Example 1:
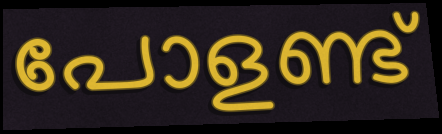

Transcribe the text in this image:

പോളണ്ട്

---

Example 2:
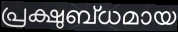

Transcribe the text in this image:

പ്രക്ഷുബ്ധമായ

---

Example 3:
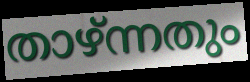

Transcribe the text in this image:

താഴ്ന്നതും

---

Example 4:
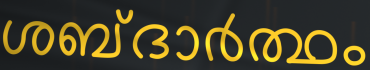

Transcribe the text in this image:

ശബ്ദാർത്ഥം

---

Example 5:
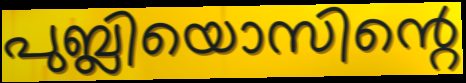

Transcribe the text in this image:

പുബ്ലിയൊസിന്റെ